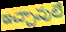
ఇచ్చావులే